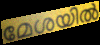
മേശയിൽ